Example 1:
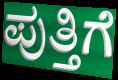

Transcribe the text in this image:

ಪುತ್ತಿಗೆ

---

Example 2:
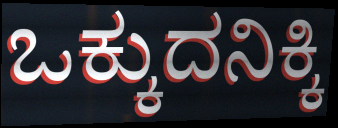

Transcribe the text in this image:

ಒಕ್ಕುದನಿಕ್ಕಿ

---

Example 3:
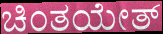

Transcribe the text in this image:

ಚಿಂತಯೇತ್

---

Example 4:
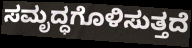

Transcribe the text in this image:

ಸಮೃದ್ಧಗೊಳಿಸುತ್ತದೆ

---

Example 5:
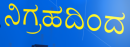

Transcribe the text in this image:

ನಿಗ್ರಹದಿಂದ